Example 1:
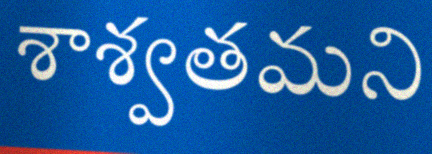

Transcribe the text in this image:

శాశ్వతమని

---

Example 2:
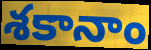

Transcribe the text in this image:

శకానాం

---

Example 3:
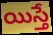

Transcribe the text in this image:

యిస్తే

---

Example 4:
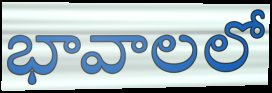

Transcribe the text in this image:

భావాలలో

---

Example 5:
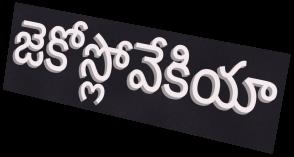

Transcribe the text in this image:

జెకోస్లోవేకియా